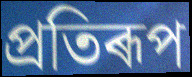
প্ৰতিৰূপ